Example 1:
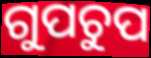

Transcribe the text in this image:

ଗୁପଚୁପ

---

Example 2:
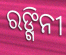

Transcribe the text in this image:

ରଙ୍ଗିନୀ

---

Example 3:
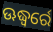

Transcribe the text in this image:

ଊଦ୍ଧ୍ୱର୍ରେ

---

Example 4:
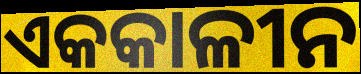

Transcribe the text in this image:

ଏକକାଳୀନ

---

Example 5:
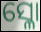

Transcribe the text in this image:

ସ୍ଳୋ